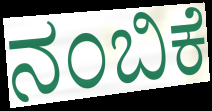
ನಂಬಿಕೆ